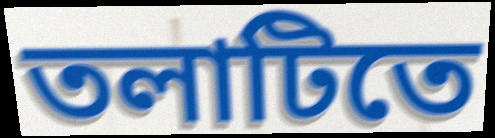
তলাটিতে